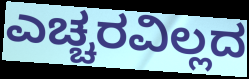
ಎಚ್ಚರವಿಲ್ಲದ